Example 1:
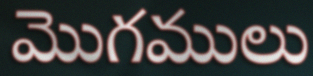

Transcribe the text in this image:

మొగములు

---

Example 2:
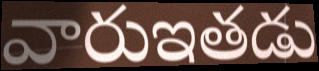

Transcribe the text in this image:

వారుఇతడు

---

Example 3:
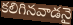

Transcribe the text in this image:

కలిగినవాడనై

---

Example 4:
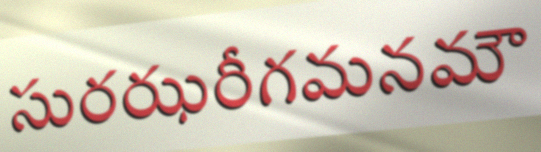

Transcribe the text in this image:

సురఝరీగమనమౌ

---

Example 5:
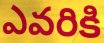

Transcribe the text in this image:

ఎవరికి